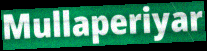
Mullaperiyar